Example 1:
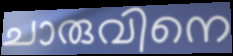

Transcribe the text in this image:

ചാരുവിനെ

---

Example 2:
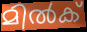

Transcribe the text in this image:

മിൽക്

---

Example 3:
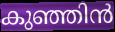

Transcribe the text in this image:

കുഞ്ഞിൻ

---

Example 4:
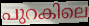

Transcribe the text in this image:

പുറകിലെ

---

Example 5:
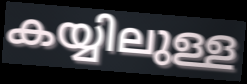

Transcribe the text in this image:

കയ്യിലുള്ള